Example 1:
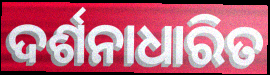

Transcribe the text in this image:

ଦର୍ଶନାଧାରିତ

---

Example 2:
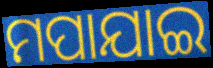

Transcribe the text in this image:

ମପାଯାଇ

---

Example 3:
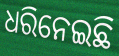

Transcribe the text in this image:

ଧରିନେଇଛି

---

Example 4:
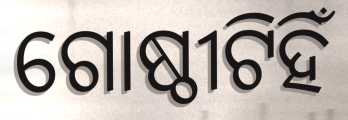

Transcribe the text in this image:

ଗୋଷ୍ଠୀଟିହିଁ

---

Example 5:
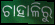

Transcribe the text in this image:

ଚାହାଳିରୁ